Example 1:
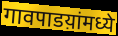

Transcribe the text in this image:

गावपाडय़ांमध्ये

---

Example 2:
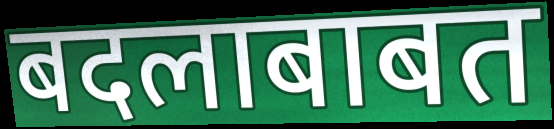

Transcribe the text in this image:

बदलाबाबत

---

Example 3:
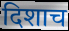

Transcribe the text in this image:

दिशाच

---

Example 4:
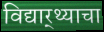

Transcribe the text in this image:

विद्यार्थ्याचा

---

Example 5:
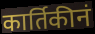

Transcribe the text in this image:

कार्तिकीनं